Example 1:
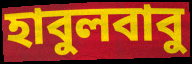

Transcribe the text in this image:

হাবুলবাবু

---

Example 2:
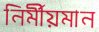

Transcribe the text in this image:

নির্মীয়মান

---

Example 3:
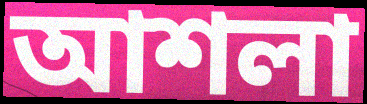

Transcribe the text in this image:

আশলা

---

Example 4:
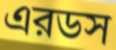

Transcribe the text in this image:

এরডস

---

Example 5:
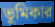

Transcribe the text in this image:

ভূমিকার